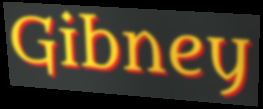
Gibney